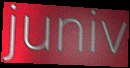
juniv